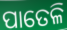
ପାତେଳି